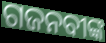
ଗଜନବୀଙ୍କ